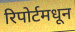
रिपोर्टमधून